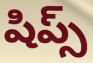
షిప్స్